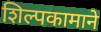
शिल्पकामाने